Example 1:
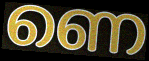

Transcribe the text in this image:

ണെ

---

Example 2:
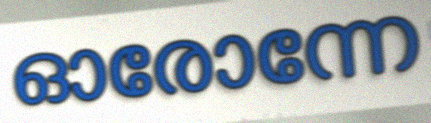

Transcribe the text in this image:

ഓരോന്നേ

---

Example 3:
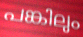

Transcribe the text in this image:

പങ്കിലും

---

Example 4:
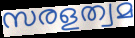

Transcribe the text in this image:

സരളത്വമ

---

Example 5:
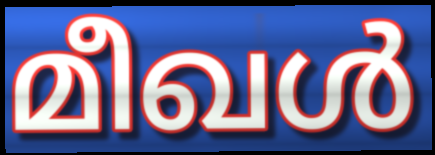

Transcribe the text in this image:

മീഖൾ